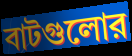
বাটগুলোর